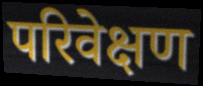
परिवेक्षण